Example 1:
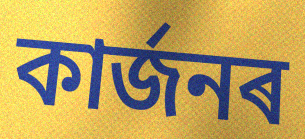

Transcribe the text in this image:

কাৰ্জনৰ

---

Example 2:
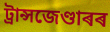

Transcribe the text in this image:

ট্ৰান্সজেণ্ডাৰৰ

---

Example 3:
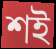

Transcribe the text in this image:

শই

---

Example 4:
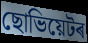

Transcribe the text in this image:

ছোভিয়েটৰ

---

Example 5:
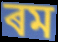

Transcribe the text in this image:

ৰম